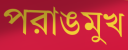
পরাঙমুখ